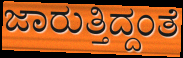
ಜಾರುತ್ತಿದ್ದಂತೆ